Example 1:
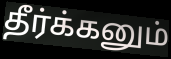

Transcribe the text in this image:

தீர்க்கனும்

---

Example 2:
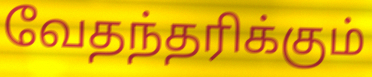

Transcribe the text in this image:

வேதந்தரிக்கும்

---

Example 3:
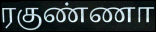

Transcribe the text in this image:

ரகுண்ணா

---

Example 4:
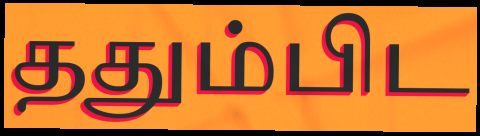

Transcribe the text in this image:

ததும்பிட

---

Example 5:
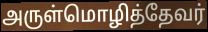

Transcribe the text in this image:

அருள்மொழித்தேவர்